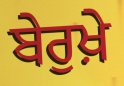
ਬੇਰੁਖ਼ੇ